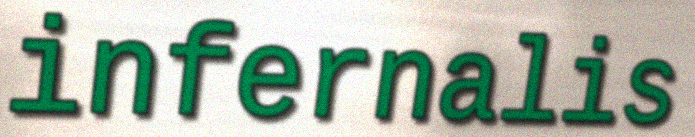
infernalis